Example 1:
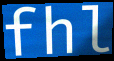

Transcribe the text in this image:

fhl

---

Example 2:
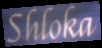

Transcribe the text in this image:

Shloka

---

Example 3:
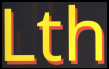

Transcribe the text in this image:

Lth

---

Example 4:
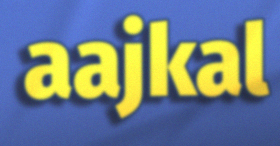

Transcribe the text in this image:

aajkal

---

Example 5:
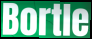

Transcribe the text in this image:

Bortle